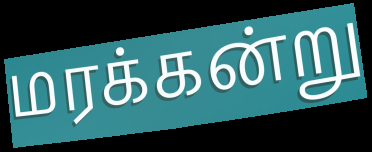
மரக்கன்று